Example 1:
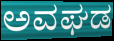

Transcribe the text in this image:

ಅವಘಡ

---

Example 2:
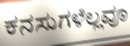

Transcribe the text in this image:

ಕನಸುಗಳೆಲ್ಲವೂ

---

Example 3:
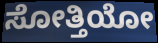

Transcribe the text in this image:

ಸೋತ್ತಿಯೋ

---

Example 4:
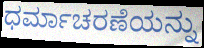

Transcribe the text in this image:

ಧರ್ಮಾಚರಣೆಯನ್ನು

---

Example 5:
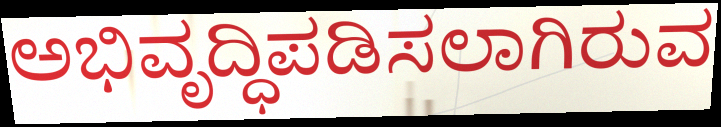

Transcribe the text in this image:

ಅಭಿವೃದ್ಧಿಪಡಿಸಲಾಗಿರುವ